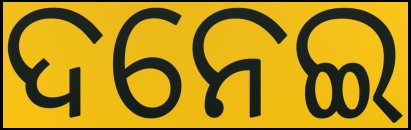
ଦନେଇ